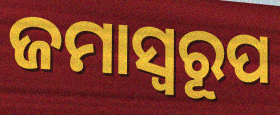
ଜମାସ୍ବରୂପ